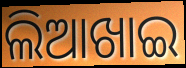
ଲିଆଖାଇ